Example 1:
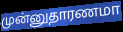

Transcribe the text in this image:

முன்னுதாரணமா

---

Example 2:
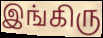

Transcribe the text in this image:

இங்கிரு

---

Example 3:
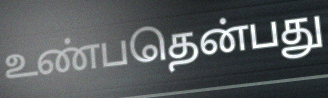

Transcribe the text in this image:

உண்பதென்பது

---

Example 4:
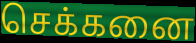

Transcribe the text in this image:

செக்கனை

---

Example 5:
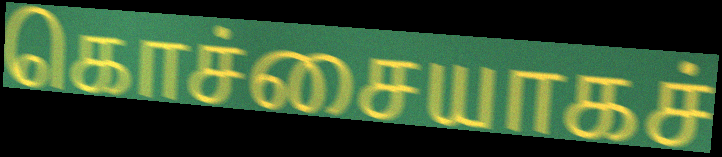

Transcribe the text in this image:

கொச்சையாகச்